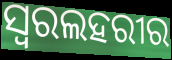
ସ୍ୱରଲହରୀର